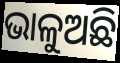
ଭାଳୁଅଛି